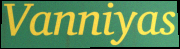
Vanniyas